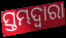
ସ୍ତମ୍ଭଦ୍ୱାରା